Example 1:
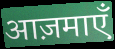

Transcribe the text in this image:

आज़माएँ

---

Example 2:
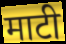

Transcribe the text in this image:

माटी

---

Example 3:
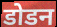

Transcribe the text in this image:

डोडन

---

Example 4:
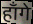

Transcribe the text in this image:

हाँगे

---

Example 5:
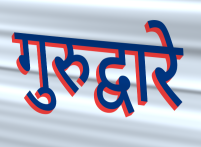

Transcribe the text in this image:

गुरुद्वारे